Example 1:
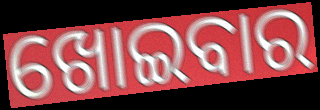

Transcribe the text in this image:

ଖୋଇବାର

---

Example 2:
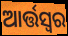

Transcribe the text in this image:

ଆର୍ତ୍ତସ୍ୱର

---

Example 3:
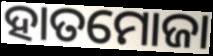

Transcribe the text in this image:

ହାତମୋଜା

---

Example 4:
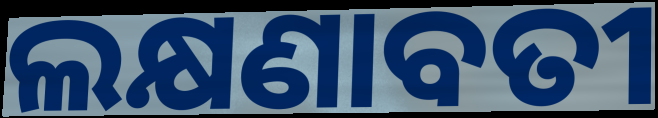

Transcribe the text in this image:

ଲକ୍ଷଣାବତୀ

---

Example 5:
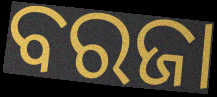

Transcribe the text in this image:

ବରଜା